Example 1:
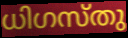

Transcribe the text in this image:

ധിഗസ്തു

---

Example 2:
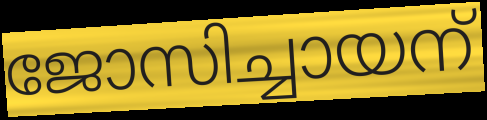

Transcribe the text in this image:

ജോസിച്ചായന്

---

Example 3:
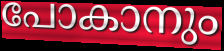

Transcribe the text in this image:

പോകാനും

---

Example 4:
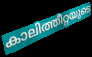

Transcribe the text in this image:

കാലിത്തീറ്റയുടെ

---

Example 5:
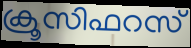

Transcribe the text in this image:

ക്രൂസിഫറസ്